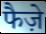
फैज़े